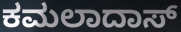
ಕಮಲಾದಾಸ್